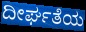
ದೀರ್ಘತೆಯ